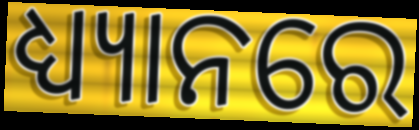
ଧ୍ୟ୍ୟାନରେ